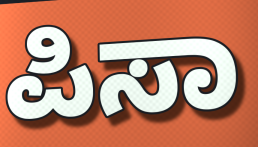
ಪಿಸಾ